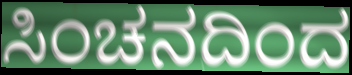
ಸಿಂಚನದಿಂದ